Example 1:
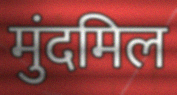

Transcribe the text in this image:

मुंदमिल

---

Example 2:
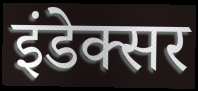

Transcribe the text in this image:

इंडेक्सर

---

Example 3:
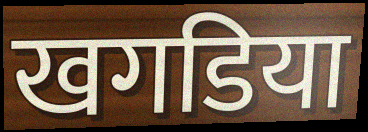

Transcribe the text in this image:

खगडिया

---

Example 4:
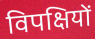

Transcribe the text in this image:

विपक्षियों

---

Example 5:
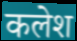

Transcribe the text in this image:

कलेश